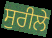
ਸੁਰੀਲੇ